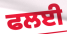
ਫਲਈ